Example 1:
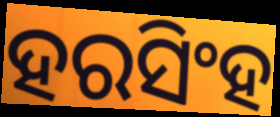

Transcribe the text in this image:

ହରସିଂହ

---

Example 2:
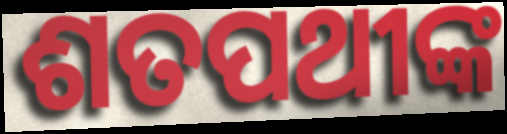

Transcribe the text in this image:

ଶତପଥୀଙ୍କ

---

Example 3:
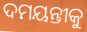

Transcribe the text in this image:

ଦମୟନ୍ତୀକୁ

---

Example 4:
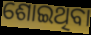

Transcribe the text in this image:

ଶୋଇଥିବା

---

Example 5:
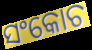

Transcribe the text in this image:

ସଂକୋଚ